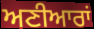
ਅਣੀਆਰਾਂ